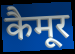
कैमूर